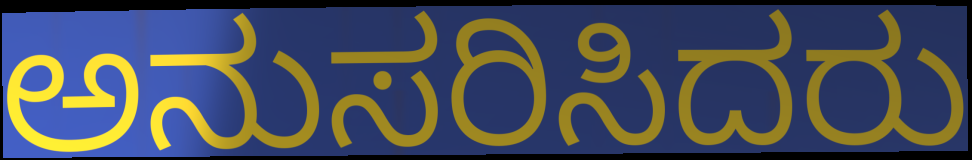
ಅನುಸರಿಸಿದರು